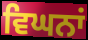
ਵਿਘਨਾਂ